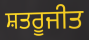
ਸ਼ਤਰੂਜੀਤ